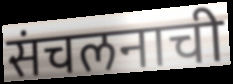
संचलनाची